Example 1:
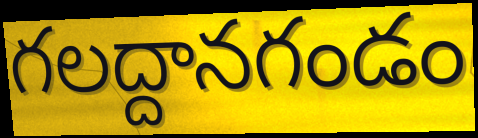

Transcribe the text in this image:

గలద్దానగండం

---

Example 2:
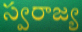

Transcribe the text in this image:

స్వరాజ్య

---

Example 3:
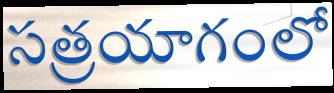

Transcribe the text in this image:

సత్రయాగంలో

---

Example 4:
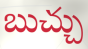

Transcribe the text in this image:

బుచ్చు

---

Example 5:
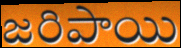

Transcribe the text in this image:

జరిపాయి